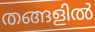
തങ്ങളിൽ